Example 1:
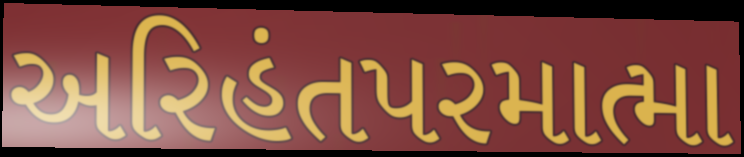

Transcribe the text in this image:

અરિહંતપરમાત્મા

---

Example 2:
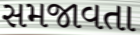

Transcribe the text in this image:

સમજાવતા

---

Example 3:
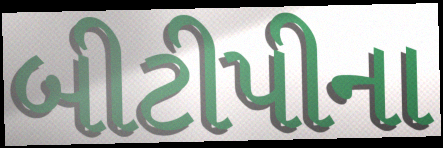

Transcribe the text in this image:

બીટીપીના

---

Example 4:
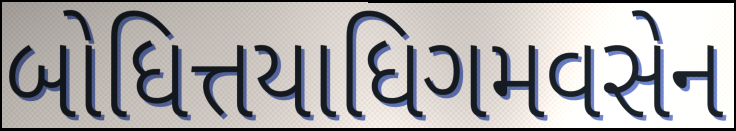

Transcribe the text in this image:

બોધિત્તયાધિગમવસેન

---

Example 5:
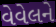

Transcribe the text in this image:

વેવેલને